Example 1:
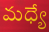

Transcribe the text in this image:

మధ్యే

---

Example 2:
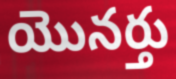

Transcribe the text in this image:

యొనర్తు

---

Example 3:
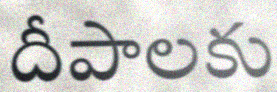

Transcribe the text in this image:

దీపాలకు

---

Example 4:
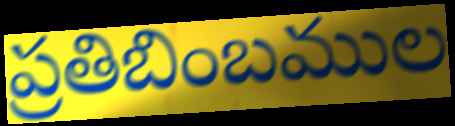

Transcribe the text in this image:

ప్రతిబింబముల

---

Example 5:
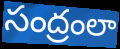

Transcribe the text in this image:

సంద్రంలా